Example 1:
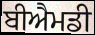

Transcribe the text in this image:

ਬੀਐਮਡੀ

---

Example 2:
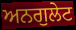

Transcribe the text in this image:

ਅਨਗੁਲੇਟ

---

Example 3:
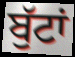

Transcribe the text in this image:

ਬੁੱਟਾਂ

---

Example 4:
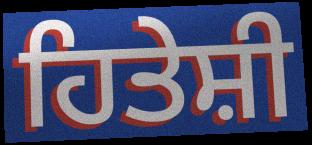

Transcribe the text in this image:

ਹਿਤੇਸ਼ੀ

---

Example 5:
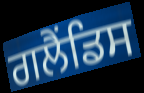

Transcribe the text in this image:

ਗਲੈਂਡਿਸ